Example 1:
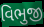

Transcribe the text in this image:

વિભુજી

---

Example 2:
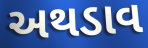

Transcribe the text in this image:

અથડાવ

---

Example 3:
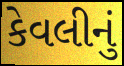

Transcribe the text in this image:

કેવલીનું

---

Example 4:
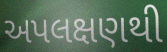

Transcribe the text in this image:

અપલક્ષણથી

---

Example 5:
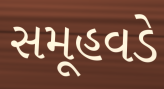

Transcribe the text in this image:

સમૂહવડે